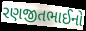
રણજીતભાઈનો